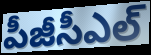
పీజీసీఎల్